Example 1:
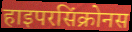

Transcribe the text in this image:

हाइपरसिंक्रोनस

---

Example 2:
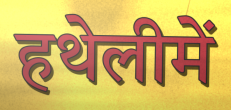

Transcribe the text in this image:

हथेलीमें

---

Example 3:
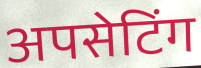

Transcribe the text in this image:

अपसेटिंग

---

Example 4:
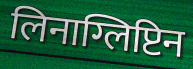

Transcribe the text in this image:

लिनाग्लिप्टिन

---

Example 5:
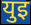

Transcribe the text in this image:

युइ